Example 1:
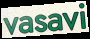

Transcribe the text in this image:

vasavi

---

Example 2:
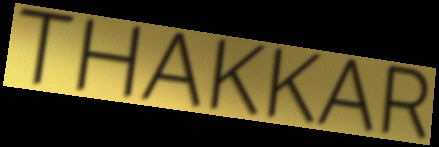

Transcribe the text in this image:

THAKKAR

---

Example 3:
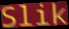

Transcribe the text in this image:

Slik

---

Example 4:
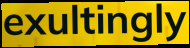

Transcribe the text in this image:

exultingly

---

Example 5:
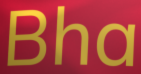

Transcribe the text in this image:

Bha